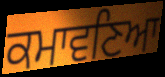
ਕਮਾਵਣਿਆ